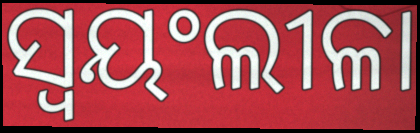
ସ୍ବୟଂଲୀଳା